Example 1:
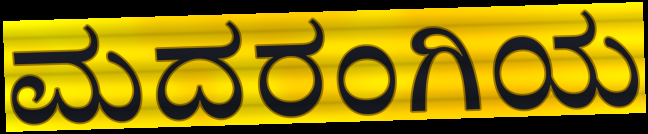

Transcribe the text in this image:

ಮದರಂಗಿಯ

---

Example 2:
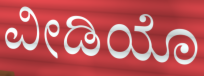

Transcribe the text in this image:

ವೀಡಿಯೊ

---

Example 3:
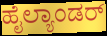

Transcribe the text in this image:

ಹೈಲ್ಯಾಂಡರ್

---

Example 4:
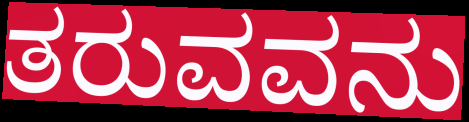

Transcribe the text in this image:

ತರುವವನು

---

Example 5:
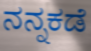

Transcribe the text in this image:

ನನ್ನಕಡೆ